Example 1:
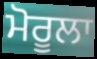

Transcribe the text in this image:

ਮੋਰੂਲਾ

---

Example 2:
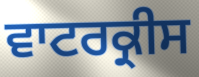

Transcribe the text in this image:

ਵਾਟਰਕ੍ਰੀਸ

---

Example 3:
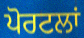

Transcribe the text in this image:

ਪੋਰਟਲਾਂ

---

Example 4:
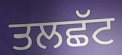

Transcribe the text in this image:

ਤਲਛੱਟ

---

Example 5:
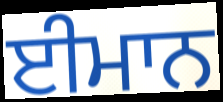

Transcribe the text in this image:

ਈਮਾਨ